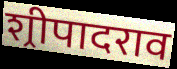
श्रीपादराव